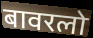
बावरलो